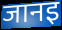
जानइ